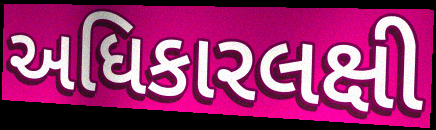
અધિકારલક્ષી